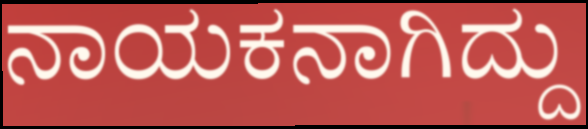
ನಾಯಕನಾಗಿದ್ದು